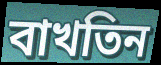
বাখতিন